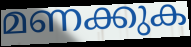
മണക്കുക